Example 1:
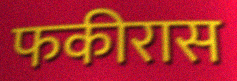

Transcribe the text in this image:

फकीरास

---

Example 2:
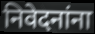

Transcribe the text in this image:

निवेदनांना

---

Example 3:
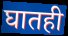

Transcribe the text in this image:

घातही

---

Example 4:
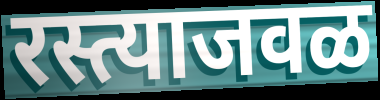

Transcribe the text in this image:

रस्त्याजवळ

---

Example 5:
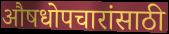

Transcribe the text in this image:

औषधोपचारांसाठी